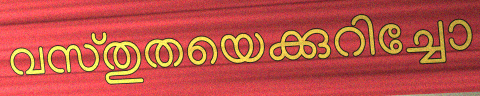
വസ്തുതയെക്കുറിച്ചോ